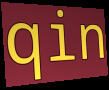
qin